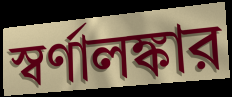
স্বর্ণালঙ্কার